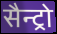
सैन्ट्रो